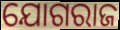
ଯୋଗରାଜ